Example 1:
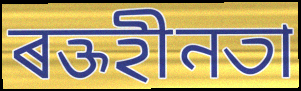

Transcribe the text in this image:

ৰক্তহীনতা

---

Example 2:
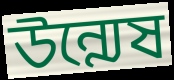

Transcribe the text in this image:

উন্মেষ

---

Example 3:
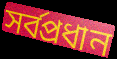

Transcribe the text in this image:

সৰ্বপ্ৰধান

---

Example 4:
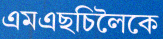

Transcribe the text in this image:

এমএছচিলৈকে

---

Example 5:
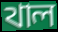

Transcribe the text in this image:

থাল